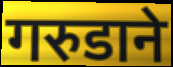
गरुडाने